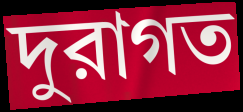
দুরাগত